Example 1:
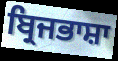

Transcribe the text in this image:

ਬ੍ਰਿਜਭਾਸ਼ਾ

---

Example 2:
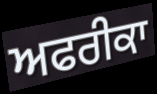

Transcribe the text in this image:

ਅਫਰੀਕਾ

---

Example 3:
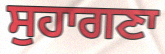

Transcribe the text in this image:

ਸੁਹਾਗਣਾ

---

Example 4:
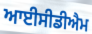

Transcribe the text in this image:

ਆਈਸੀਡੀਐਮ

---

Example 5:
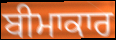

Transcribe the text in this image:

ਬੀਮਾਕਾਰ